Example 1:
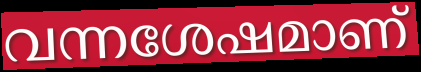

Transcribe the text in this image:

വന്നശേഷമാണ്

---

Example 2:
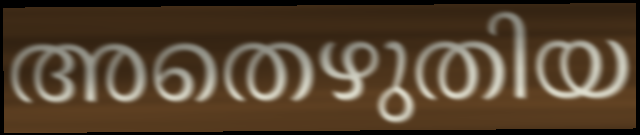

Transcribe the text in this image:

അതെഴുതിയ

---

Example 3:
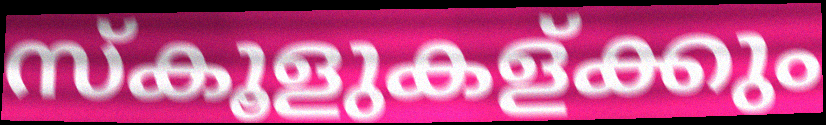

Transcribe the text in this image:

സ്കൂളുകള്ക്കും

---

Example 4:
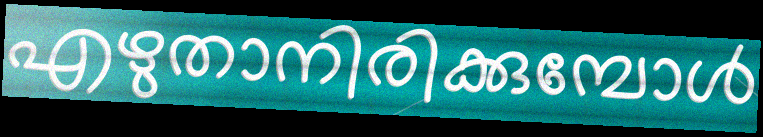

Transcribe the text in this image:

എഴുതാനിരിക്കുമ്പോൾ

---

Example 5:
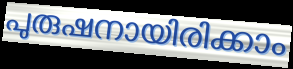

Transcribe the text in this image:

പുരുഷനായിരിക്കാം